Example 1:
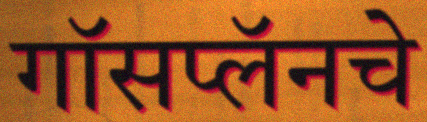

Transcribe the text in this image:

गॉसप्लॅनचे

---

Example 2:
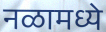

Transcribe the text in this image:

नळामध्ये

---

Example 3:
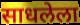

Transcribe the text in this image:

साधलेला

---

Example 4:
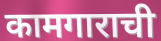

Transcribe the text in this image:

कामगाराची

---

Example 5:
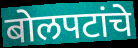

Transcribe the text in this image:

बोलपटांचे